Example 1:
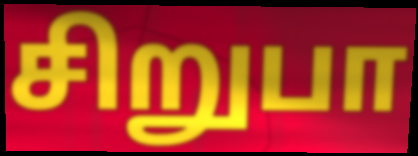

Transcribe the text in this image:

சிறுபா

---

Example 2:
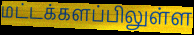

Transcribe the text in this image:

மட்டக்களப்பிலுள்ள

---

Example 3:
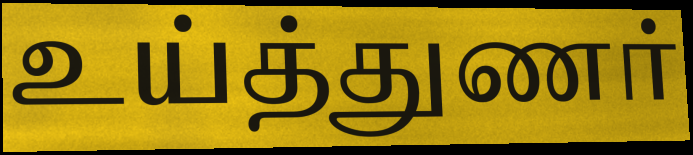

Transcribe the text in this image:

உய்த்துணர்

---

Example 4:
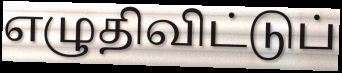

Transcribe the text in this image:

எழுதிவிட்டுப்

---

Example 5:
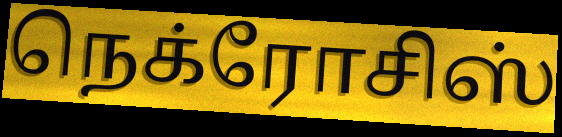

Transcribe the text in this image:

நெக்ரோசிஸ்